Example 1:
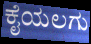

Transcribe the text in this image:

ಕೈಯಲಗು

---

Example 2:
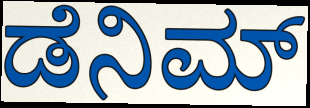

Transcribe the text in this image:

ಡೆನಿಮ್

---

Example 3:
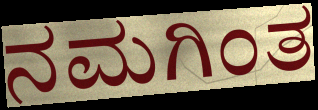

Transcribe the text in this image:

ನಮಗಿಂತ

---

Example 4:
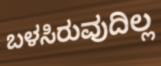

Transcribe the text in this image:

ಬಳಸಿರುವುದಿಲ್ಲ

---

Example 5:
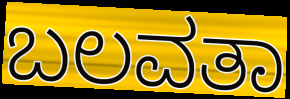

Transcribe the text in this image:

ಬಲವತಾ